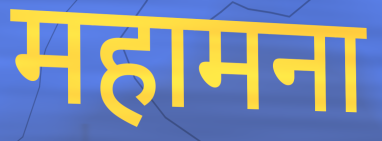
महामना